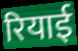
रियाई